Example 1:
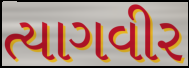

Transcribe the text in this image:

ત્યાગવીર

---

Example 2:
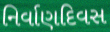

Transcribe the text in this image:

નિર્વાણદિવસ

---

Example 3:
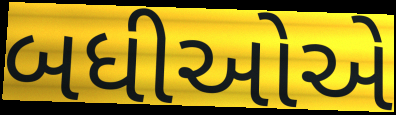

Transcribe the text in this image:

બધીઓએ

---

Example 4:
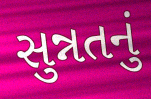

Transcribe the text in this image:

સુન્નતનું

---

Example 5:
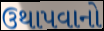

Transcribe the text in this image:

ઉથાપવાનો